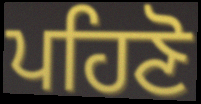
ਪਹਿਣੋ